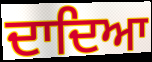
ਦਾਦਿਆ